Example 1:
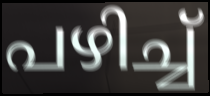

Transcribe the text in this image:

പഴിച്ച്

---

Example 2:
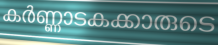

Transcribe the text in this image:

കർണ്ണാടകക്കാരുടെ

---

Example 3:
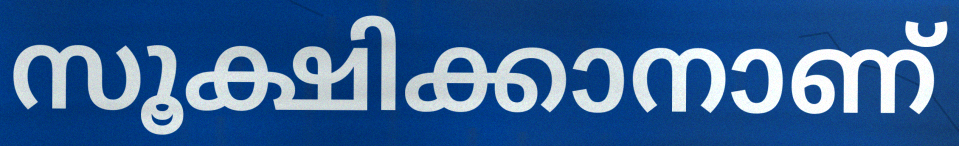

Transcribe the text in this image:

സൂക്ഷിക്കാനാണ്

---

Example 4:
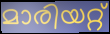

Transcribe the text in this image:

മാരിയറ്റ്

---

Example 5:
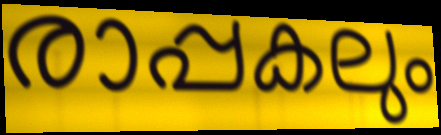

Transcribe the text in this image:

രാപ്പകലും